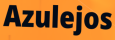
Azulejos